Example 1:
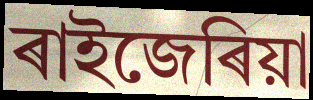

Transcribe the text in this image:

ৰাইজেৰিয়া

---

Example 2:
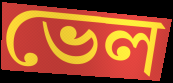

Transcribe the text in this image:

ভেল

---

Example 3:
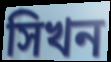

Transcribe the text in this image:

সিখন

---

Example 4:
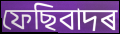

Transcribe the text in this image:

ফেছিবাদৰ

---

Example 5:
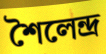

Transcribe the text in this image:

শৈলেন্দ্ৰ